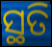
ସ୍ଥତି